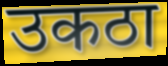
उकठा